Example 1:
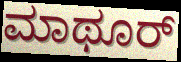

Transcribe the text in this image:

ಮಾಥೂರ್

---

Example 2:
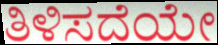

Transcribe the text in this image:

ತಿಳಿಸದೆಯೇ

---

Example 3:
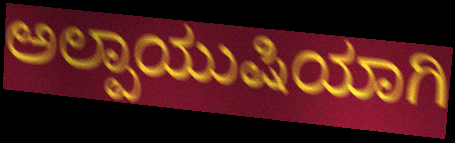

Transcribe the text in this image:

ಅಲ್ಪಾಯುಷಿಯಾಗಿ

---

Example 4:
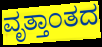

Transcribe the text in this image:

ವೃತ್ತಾಂತದ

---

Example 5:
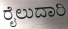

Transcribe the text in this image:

ರೈಲುದಾರಿ